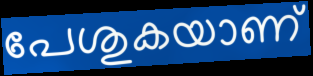
പേശുകയാണ്